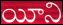
యీని